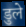
डुले